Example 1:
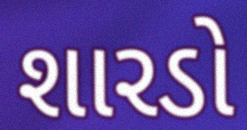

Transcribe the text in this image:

શારડો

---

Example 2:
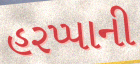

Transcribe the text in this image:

હરપ્પાની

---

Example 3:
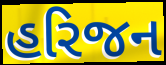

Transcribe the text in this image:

હરિજન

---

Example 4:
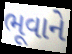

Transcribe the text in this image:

ભૂવાને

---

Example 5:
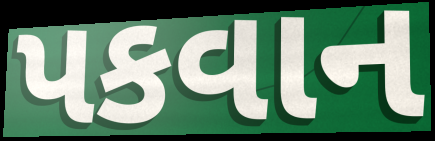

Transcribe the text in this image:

પકવાન